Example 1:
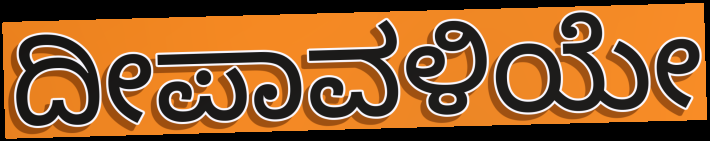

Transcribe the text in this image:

ದೀಪಾವಳಿಯೇ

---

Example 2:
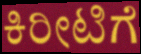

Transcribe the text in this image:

ಕಿರೀಟಿಗೆ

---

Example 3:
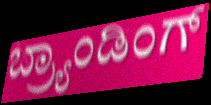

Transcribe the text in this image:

ಬ್ರ್ಯಾಂಡಿಂಗ್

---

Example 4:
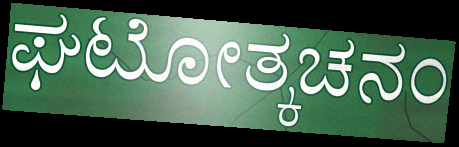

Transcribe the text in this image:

ಘಟೋತ್ಕಚನಂ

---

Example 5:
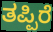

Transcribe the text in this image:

ತಪ್ಪಿರೆ